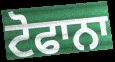
ਟੋਫਾਨਾ